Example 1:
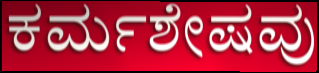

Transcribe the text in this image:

ಕರ್ಮಶೇಷವು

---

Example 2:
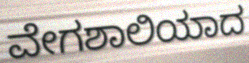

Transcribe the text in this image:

ವೇಗಶಾಲಿಯಾದ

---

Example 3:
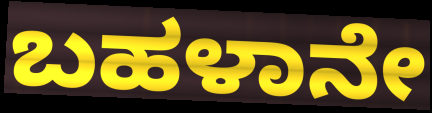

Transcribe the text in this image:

ಬಹಳಾನೇ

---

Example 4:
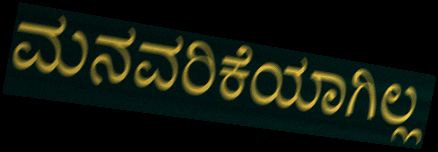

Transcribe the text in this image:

ಮನವರಿಕೆಯಾಗಿಲ್ಲ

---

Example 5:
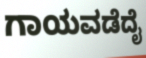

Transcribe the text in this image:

ಗಾಯವಡೆದೈ